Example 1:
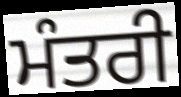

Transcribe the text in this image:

ਮੰਤਰੀ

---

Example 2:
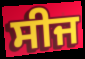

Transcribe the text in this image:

ਸੀਜ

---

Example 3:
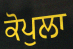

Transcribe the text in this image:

ਕੋਪੁਲਾ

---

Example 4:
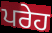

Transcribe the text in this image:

ਪਰੇਹ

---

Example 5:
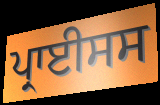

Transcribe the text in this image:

ਪ੍ਰਾਈਸਸ